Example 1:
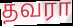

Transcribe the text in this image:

தவரா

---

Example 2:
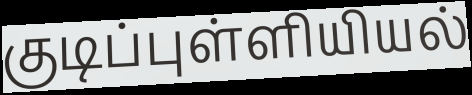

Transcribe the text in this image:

குடிப்புள்ளியியல்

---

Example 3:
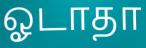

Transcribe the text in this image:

ஓடாதா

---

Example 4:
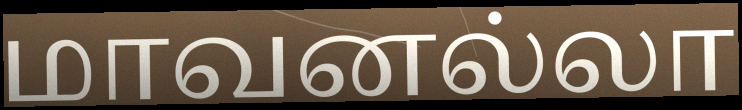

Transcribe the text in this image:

மாவனல்லா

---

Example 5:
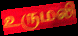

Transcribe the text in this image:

உருமலி